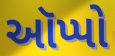
ઑપ્પો